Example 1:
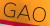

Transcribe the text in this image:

GAO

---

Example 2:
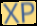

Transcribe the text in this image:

XP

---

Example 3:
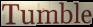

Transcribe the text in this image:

Tumble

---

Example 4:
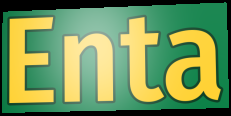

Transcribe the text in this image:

Enta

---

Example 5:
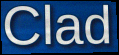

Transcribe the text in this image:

Clad